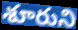
శూరుని